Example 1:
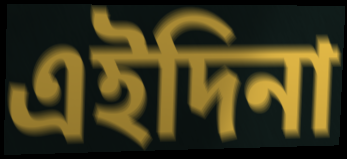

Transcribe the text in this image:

এইদিনা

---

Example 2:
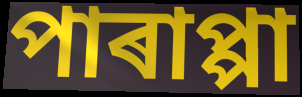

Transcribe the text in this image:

পাৰাপ্পা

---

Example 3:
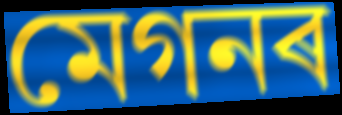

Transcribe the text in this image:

মেগনৰ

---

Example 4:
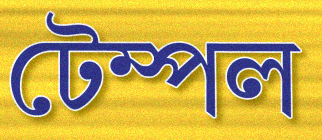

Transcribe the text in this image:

টেম্পল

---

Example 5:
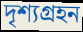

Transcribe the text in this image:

দৃশ্যগ্ৰহন